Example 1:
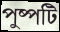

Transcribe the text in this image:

পুষ্পটি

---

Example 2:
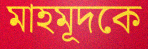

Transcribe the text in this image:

মাহমূদকে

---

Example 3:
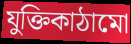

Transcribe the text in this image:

যুক্তিকাঠামো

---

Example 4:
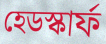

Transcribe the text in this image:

হেডস্কার্ফ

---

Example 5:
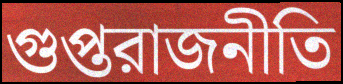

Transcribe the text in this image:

গুপ্তরাজনীতি